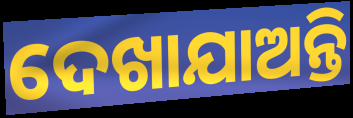
ଦେଖାଯାଅନ୍ତି